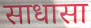
साधासा